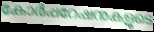
കോർപ്പറേഷനുകളുടെ